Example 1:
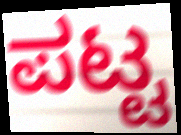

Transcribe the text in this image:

ಪಟ್ಟ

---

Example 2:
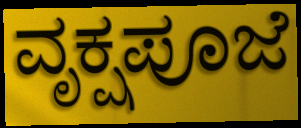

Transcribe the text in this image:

ವೃಕ್ಷಪೂಜೆ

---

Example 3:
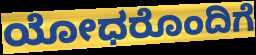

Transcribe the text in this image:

ಯೋಧರೊಂದಿಗೆ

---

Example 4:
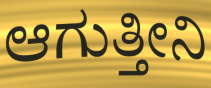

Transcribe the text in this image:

ಆಗುತ್ತೀನಿ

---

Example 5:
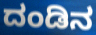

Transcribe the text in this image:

ದಂಡಿನ